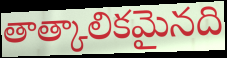
తాత్కాలికమైనది